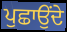
ਪੁਛਾਉਂਦੇ